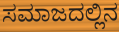
ಸಮಾಜದಲ್ಲಿನ